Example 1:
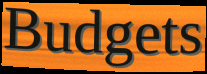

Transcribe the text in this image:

Budgets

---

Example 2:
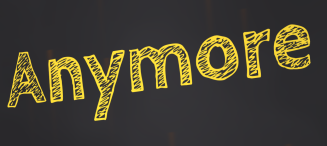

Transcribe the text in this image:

Anymore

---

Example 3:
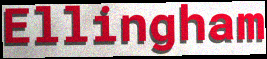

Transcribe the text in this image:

Ellingham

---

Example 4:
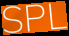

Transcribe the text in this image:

SPL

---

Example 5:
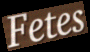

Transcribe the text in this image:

Fetes